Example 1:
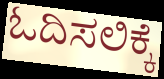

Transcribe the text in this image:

ಓದಿಸಲಿಕ್ಕೆ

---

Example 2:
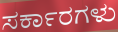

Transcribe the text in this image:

ಸರ್ಕಾರಗಳು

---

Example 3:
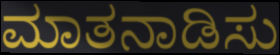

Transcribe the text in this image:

ಮಾತನಾಡಿಸು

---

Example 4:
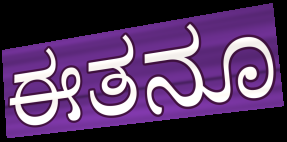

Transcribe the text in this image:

ಈತನೂ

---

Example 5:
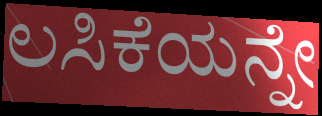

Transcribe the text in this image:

ಲಸಿಕೆಯನ್ನೇ